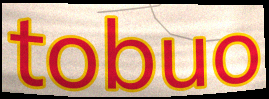
tobuo